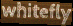
whitefly